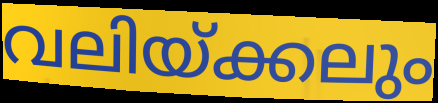
വലിയ്ക്കലും